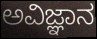
ಅವಿಜ್ಞಾನ